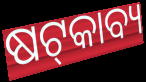
ଷଟ୍‌କାବ୍ୟ